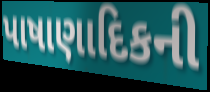
પાષાણાદિકની